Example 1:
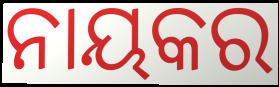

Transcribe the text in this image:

ନାୟକର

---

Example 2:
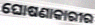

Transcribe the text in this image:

ଘୋଷଣାକାରୀର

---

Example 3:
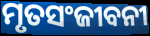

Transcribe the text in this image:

ମୃତସଂଜୀବନୀ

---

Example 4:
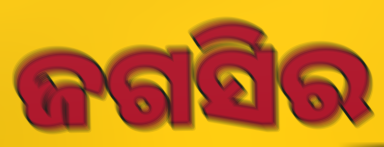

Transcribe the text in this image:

ଜଗସିର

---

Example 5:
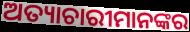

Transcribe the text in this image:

ଅତ୍ୟାଚାରୀମାନଙ୍କର